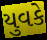
યુવકે